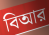
বিআর